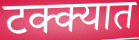
टक्क्यात